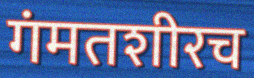
गंमतशीरच